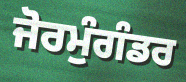
ਜੋਰਮੁੰਗੰਡਰ